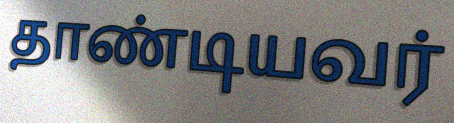
தாண்டியவர்